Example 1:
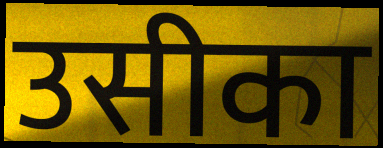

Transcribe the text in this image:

उसीका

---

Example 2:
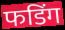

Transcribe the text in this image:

फडिंग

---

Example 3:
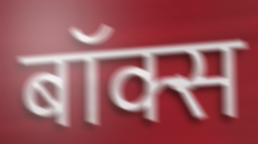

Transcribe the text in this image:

बॉक्स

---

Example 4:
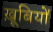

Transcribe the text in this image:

ख़ूबियों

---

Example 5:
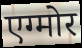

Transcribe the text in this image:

एग्मोर